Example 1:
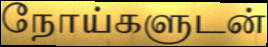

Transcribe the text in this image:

நோய்களுடன்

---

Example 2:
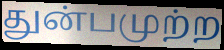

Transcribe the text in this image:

துன்பமுற்ற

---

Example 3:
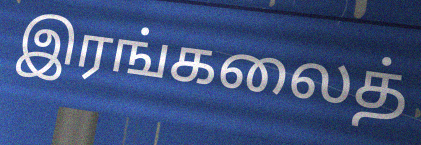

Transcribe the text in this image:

இரங்கலைத்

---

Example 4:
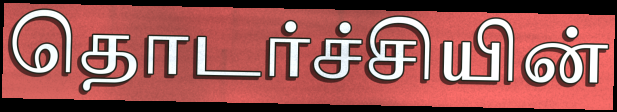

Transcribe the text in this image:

தொடர்ச்சியின்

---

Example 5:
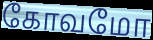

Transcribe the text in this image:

கோவமோ